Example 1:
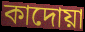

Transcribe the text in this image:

কাদোয়া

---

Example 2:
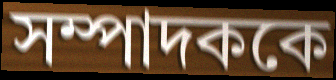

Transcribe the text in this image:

সম্পাদককে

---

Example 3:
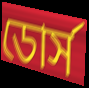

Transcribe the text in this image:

ডোর্স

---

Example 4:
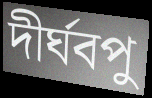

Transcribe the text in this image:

দীর্ঘবপু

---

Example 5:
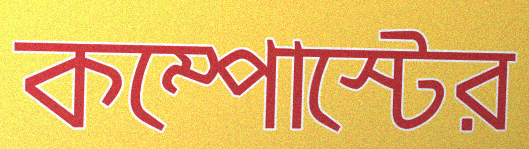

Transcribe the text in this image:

কম্পোস্টের